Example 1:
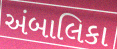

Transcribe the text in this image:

અંબાલિકા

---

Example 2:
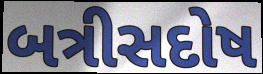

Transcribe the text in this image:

બત્રીસદોષ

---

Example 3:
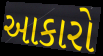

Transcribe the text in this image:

આકારો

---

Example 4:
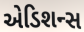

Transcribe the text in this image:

એડિશન્સ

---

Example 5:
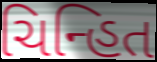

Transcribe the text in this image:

ચિન્હિત